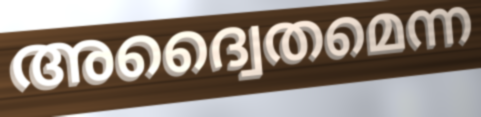
അദ്വൈതമെന്ന